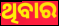
ଥିବାର